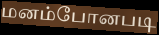
மனம்போனபடி